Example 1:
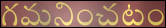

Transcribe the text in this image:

గమనించటం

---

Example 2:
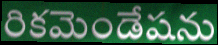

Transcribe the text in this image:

రికమెండేషను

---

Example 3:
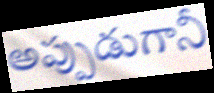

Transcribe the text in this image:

అప్పుడుగానీ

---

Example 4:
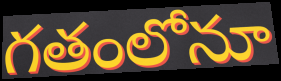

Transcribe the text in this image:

గతంలోనూ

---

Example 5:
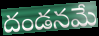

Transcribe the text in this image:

దండనమే